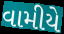
વામીયે